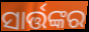
ସାର୍ତ୍ତଙ୍କର